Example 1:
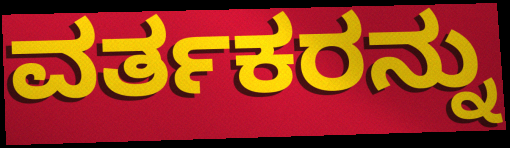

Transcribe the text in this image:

ವರ್ತಕರನ್ನು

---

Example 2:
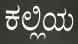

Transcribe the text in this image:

ಕಲ್ಲಿಯ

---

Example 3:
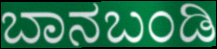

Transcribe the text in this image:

ಬಾನಬಂಡಿ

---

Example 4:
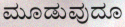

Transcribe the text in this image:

ಮೂಡುವುದೂ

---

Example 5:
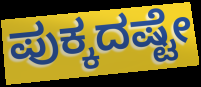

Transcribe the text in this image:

ಪುಕ್ಕದಷ್ಟೇ